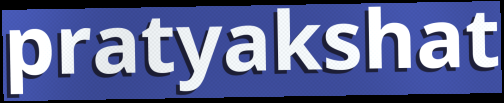
pratyakshat